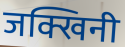
जक्खिनी